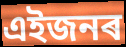
এইজনৰ